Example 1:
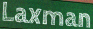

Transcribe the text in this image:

Laxman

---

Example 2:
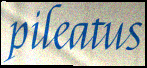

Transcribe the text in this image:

pileatus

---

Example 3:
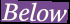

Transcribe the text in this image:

Below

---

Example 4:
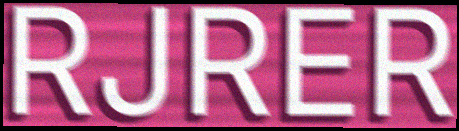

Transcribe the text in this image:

RJRER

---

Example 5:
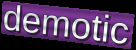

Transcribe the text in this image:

demotic